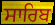
ਸਾਰਿਬ